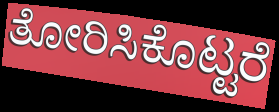
ತೋರಿಸಿಕೊಟ್ಟರೆ